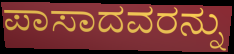
ಪಾಸಾದವರನ್ನು